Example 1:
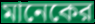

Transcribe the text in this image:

মানেকের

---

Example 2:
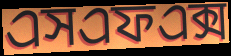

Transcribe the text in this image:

এসএফএক্স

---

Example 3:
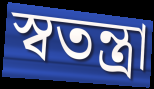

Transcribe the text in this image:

স্বতন্ত্রা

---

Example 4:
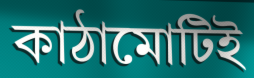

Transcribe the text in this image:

কাঠামোটিই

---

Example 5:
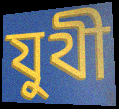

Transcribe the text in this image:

যুথী